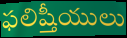
ఫలిష్తీయులు